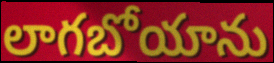
లాగబోయాను